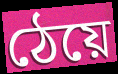
ঠেয়ে